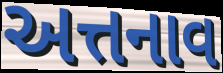
અત્તનાવ